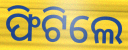
ଫିଟିଲେ